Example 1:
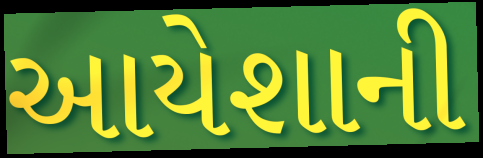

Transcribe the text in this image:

આયેશાની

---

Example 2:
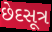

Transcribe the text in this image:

છેદસૂત્ર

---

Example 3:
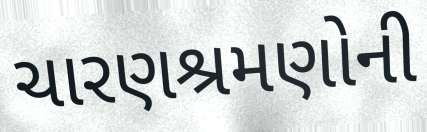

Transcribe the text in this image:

ચારણશ્રમણોની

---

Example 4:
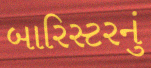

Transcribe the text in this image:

બારિસ્ટરનું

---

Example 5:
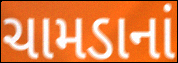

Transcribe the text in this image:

ચામડાનાં